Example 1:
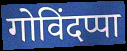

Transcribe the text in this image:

गोविंदप्पा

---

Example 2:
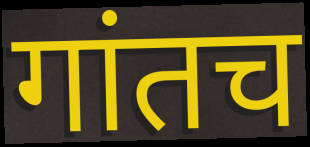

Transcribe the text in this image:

गांतच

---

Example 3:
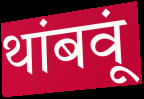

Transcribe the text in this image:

थांबवूं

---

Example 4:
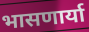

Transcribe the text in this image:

भासणार्या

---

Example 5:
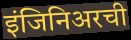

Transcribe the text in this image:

इंजिनिअरची